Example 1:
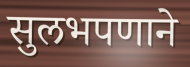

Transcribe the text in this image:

सुलभपणाने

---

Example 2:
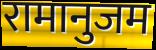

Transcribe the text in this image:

रामानुजम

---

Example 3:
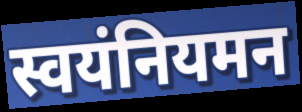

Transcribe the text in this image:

स्वयंनियमन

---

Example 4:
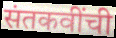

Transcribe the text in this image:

संतकवींची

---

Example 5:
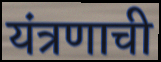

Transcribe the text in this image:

यंत्रणाची